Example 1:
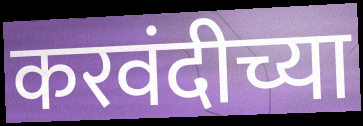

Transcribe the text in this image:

करवंदीच्या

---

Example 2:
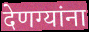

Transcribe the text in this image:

देणग्यांना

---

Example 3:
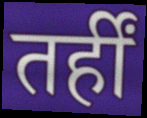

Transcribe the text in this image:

तर्हीं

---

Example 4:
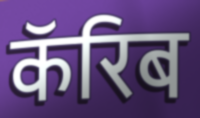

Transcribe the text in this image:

कॅरिब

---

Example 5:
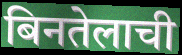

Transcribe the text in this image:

बिनतेलाची